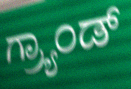
ಗ್ರ್ಯಾಂಡ್